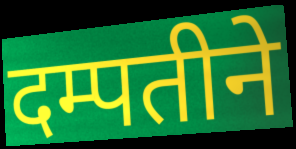
दम्पतीने